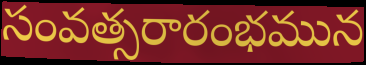
సంవత్సరారంభమున